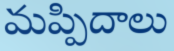
మప్పిదాలు